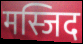
मस्जिद